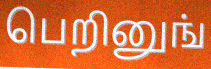
பெறினுங்